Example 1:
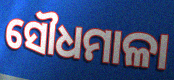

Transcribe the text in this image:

ସୌଧମାଳା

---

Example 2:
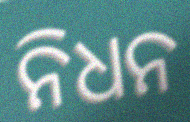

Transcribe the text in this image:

ନିଧନ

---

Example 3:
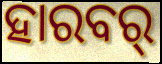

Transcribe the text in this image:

ହାରବର୍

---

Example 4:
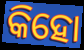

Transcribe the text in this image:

କିହୋ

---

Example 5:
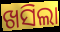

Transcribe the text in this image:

ଖସିଲା